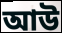
আউ